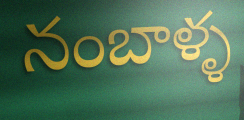
నంబాళ్ళ